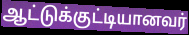
ஆட்டுக்குட்டியானவர்